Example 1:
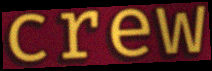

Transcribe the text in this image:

crew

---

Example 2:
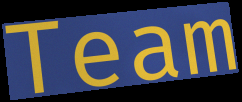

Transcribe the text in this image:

Team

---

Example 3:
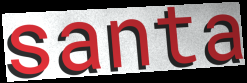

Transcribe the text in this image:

santa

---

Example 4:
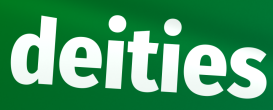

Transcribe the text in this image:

deities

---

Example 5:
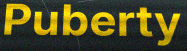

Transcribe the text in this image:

Puberty